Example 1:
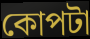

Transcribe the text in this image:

কোপটা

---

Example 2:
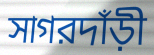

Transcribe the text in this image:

সাগরদাঁড়ী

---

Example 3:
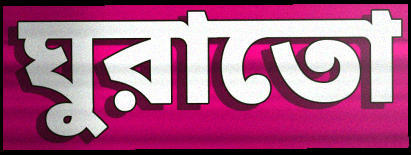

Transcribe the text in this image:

ঘুরাতো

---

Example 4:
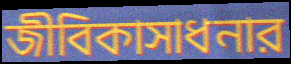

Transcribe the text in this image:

জীবিকাসাধনার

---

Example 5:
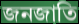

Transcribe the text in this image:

জনজাতি